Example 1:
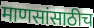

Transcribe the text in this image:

माणसांसाठीच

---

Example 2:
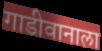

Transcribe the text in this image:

गाडीवानाला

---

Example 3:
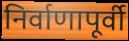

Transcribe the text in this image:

निर्वाणापूर्वी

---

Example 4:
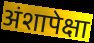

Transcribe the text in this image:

अंशापेक्षा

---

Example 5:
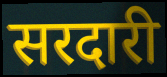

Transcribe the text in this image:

सरदारी